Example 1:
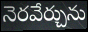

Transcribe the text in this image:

నెరవేర్చును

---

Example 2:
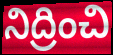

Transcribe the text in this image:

నిద్రించి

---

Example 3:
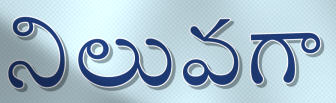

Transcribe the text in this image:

నిలువగా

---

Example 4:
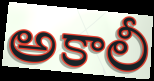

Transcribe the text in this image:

అకాలీ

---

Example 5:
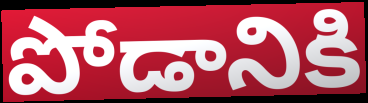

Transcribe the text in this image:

పోడానికి